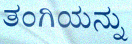
ತಂಗಿಯನ್ನು